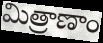
మిత్రాణాం